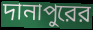
দানাপুরের